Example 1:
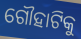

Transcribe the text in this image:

ଗୌହାଟିକୁ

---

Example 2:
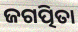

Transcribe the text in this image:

ଜଗତ୍ପିତା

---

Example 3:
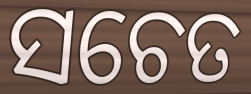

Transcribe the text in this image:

ସଚେତ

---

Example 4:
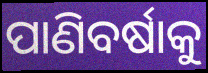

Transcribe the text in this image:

ପାଣିବର୍ଷାକୁ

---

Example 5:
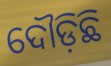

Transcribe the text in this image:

ଦୌଡ଼ିଛି